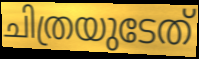
ചിത്രയുടേത്